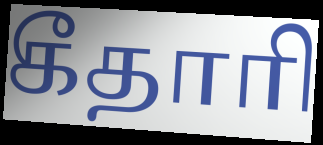
கீதாரி